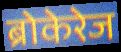
ब्रोकेरेज